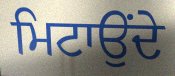
ਮਿਟਾਉਂਦੇ